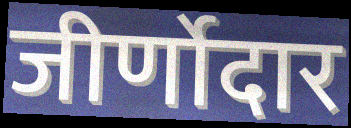
जीर्णोदार